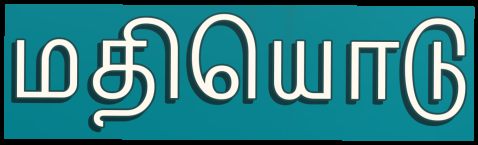
மதியொடு